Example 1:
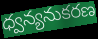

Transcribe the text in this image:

ధ్వన్యనుకరణ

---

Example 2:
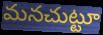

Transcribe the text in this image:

మనచుట్టూ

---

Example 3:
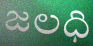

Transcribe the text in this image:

జలధి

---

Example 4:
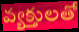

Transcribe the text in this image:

వ్యక్తులతో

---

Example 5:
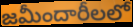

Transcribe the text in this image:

జమీందారీలలో